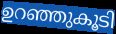
ഉറഞ്ഞുകൂടി